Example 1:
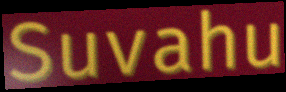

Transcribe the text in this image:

Suvahu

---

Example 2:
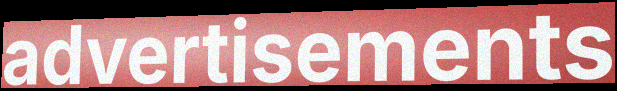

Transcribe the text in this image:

advertisements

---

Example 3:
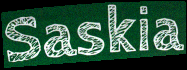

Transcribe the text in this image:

Saskia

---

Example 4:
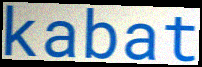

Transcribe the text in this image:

kabat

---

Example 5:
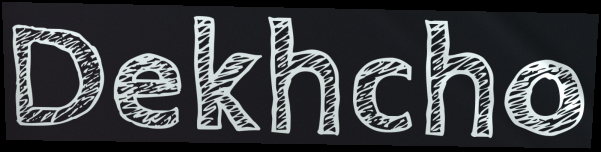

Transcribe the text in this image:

Dekhcho